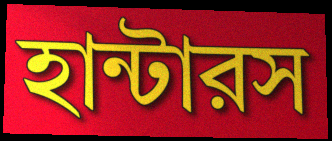
হান্টারস